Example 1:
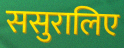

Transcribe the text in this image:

ससुरालिए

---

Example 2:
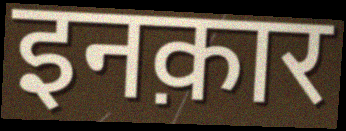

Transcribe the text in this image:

इनक़ार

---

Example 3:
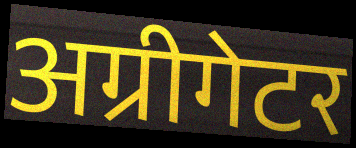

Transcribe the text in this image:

अग्रीगेटर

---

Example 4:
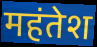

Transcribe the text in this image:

महंतेश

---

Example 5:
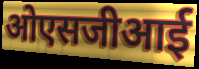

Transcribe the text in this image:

ओएसजीआई